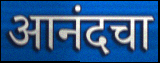
आनंदचा